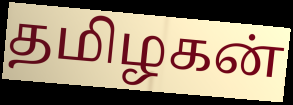
தமிழகன்